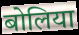
बोलिया